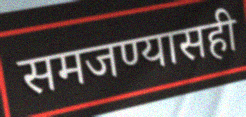
समजण्यासही